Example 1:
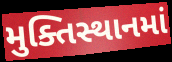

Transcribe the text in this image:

મુક્તિસ્થાનમાં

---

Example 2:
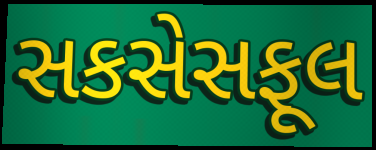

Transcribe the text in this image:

સકસેસફૂલ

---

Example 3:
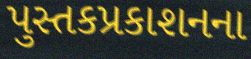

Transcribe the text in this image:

પુસ્તકપ્રકાશનના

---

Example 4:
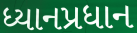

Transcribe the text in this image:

ધ્યાનપ્રધાન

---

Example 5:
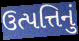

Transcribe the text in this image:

ઉત્પત્તિનું